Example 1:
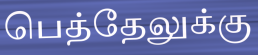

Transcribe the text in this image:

பெத்தேலுக்கு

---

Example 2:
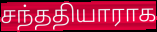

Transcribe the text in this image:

சந்ததியாராக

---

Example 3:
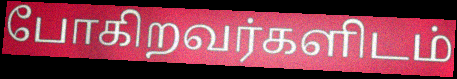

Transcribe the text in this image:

போகிறவர்களிடம்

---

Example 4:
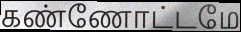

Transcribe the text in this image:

கண்ணோட்டமே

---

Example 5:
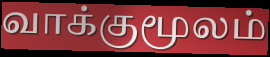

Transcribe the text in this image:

வாக்குமூலம்